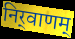
निर्वाणम्